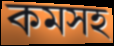
কমসহ